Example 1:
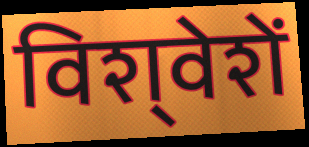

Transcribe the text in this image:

विश्वेशें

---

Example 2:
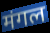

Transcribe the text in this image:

मंगल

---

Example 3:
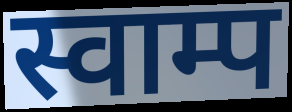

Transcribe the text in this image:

स्वाम्प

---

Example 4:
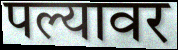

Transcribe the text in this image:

पल्यावर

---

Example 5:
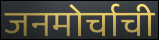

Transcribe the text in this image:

जनमोर्चाची